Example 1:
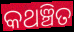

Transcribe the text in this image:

କଥଞ୍ଚିତ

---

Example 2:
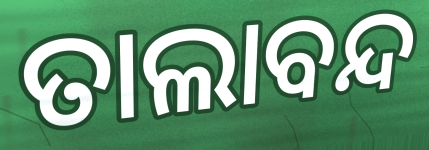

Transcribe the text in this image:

ତାଲାବନ୍ଦ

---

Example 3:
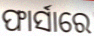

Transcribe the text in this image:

ଫାର୍ସାରେ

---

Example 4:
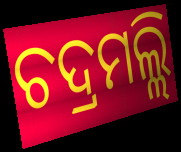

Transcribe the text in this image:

ଚଦ୍ରମଲ୍ଲି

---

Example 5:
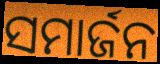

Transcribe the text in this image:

ସମାର୍ଜନ